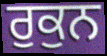
ਰੁਕੁਨ